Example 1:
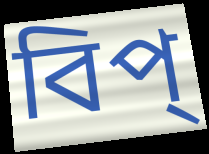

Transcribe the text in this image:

বিপ্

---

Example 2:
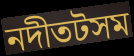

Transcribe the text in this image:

নদীতটসম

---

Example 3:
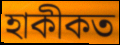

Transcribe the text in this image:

হাকীকত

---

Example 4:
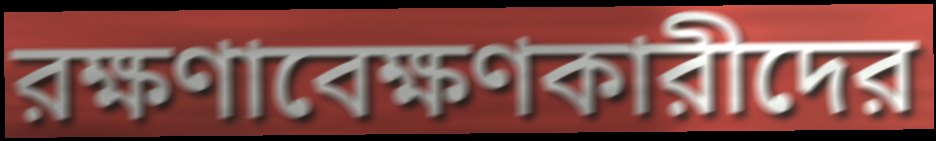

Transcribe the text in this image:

রক্ষণাবেক্ষণকারীদের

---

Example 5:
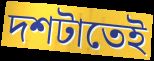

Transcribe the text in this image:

দশটাতেই